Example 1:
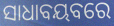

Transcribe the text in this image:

ସାଧାବୟବରେ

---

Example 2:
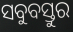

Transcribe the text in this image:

ସବୁବସ୍ତୁର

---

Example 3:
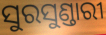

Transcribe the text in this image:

ସୁରସୁଣ୍ଡାରୀ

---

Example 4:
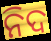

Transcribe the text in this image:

ନିଦ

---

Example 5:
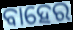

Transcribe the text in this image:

ବାହେର